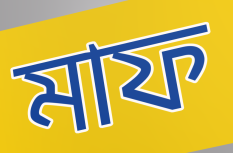
মাফ